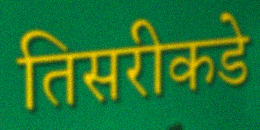
तिसरीकडे